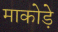
माकोड़े